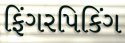
ફિંગરપિકિંગ